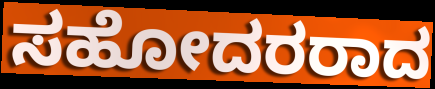
ಸಹೋದರರಾದ